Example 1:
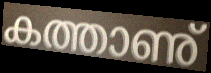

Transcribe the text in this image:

കത്താണു്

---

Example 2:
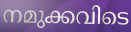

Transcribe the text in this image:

നമുക്കവിടെ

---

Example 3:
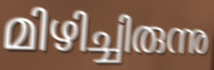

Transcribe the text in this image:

മിഴിച്ചിരുന്നു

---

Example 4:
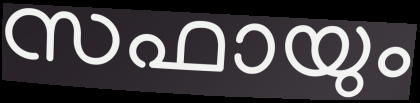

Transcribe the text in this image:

സഫായും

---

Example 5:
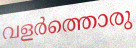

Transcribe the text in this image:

വളർത്തൊരു